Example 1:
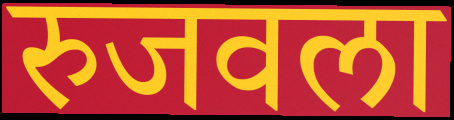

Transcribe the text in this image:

रुजवला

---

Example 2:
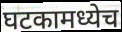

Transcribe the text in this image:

घटकामध्येच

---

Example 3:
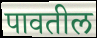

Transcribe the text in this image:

पावतील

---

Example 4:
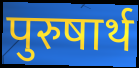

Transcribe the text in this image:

पुरुषार्थ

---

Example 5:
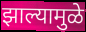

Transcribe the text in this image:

झाल्यामुळे